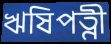
ঋষিপত্নী